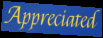
Appreciated